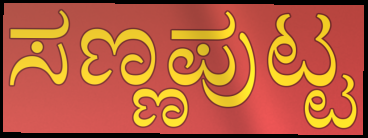
ಸಣ್ಣಪುಟ್ಟ